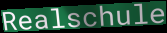
Realschule